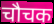
चौचक